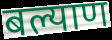
बल्याण